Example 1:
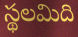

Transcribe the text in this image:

స్థలమిది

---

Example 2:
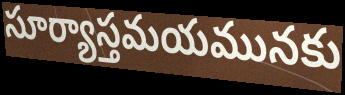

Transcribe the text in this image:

సూర్యాస్తమయమునకు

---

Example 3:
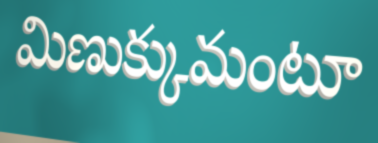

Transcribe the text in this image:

మిణుక్కుమంటూ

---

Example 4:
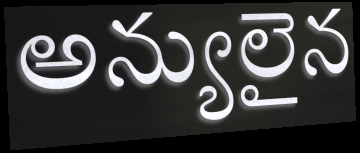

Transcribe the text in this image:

అన్యులైన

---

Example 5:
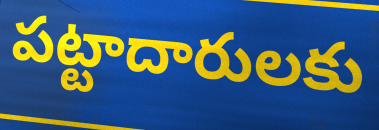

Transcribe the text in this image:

పట్టాదారులకు